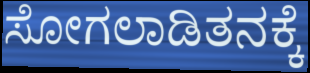
ಸೋಗಲಾಡಿತನಕ್ಕೆ